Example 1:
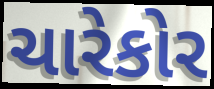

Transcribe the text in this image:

ચારેકોર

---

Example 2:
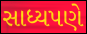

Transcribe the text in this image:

સાધ્યપણે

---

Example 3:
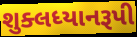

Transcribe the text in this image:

શુક્લધ્યાનરૂપી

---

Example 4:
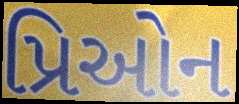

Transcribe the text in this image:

પ્રિઓન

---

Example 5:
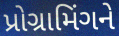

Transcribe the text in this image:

પ્રોગ્રામિંગને